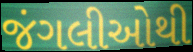
જંગલીઓથી